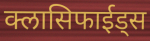
क्लासिफाईड्स